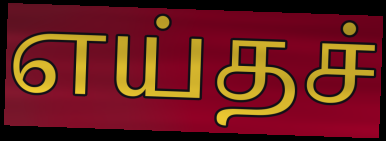
எய்தச்